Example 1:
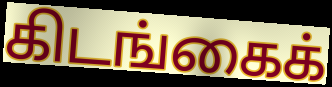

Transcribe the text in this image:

கிடங்கைக்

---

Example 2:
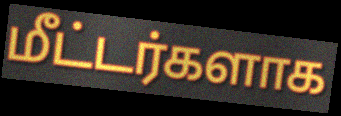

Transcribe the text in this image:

மீட்டர்களாக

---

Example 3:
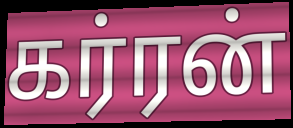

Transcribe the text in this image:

கர்ரன்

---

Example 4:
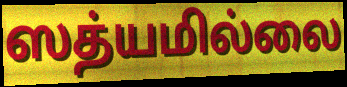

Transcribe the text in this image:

ஸத்யமில்லை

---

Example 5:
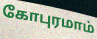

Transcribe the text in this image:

கோபுரமாம்